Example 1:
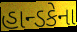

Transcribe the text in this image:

હાન્ડકેના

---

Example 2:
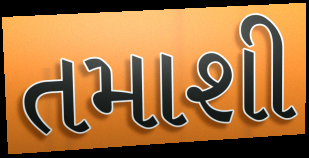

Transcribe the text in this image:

તમાશી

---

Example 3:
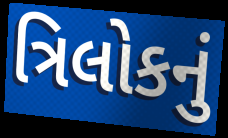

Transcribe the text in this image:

ત્રિલોકનું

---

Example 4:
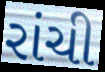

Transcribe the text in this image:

રાંચી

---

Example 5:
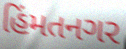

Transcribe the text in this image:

હિંમતનગર